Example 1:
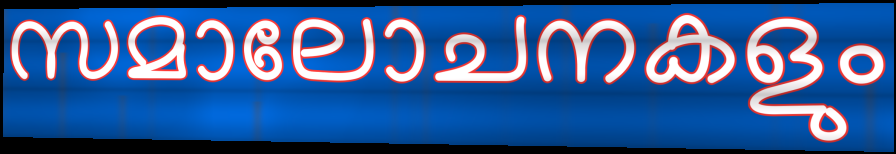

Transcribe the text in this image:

സമാലോചനകളും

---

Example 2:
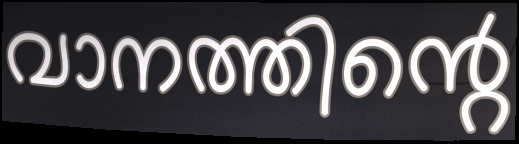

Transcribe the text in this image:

വാനത്തിന്റെ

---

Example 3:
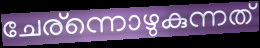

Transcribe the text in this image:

ചേര്ന്നൊഴുകുന്നത്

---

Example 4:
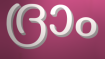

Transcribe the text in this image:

ദ്രാം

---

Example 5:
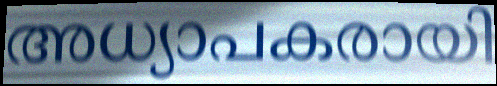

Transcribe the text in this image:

അധ്യാപകരായി